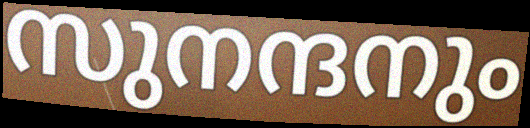
സുനന്ദനും